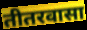
तीतरवासा